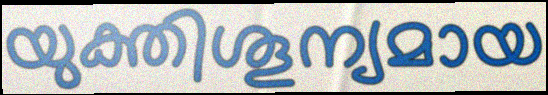
യുക്തിശൂന്യമായ